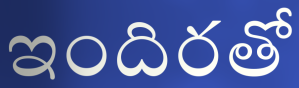
ఇందిరతో